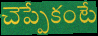
చెప్పేకంటే